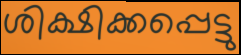
ശിക്ഷിക്കപ്പെട്ടു